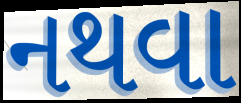
નથવા